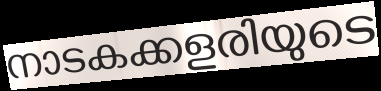
നാടകക്കളരിയുടെ